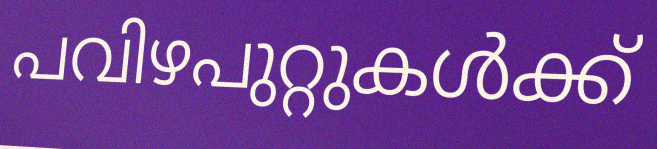
പവിഴപുറ്റുകൾക്ക്